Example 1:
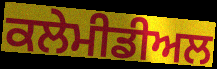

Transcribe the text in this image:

ਕਲੇਮੀਡੀਅਲ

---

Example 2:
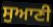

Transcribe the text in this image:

ਸੁਆਣੀ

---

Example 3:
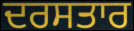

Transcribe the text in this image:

ਦਰਸਤਾਰ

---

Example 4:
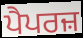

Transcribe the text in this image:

ਪੈਪਰਜ਼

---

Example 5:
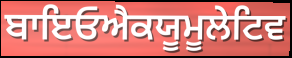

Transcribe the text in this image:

ਬਾਇਓਐਕਯੂਮੂਲੇਟਿਵ